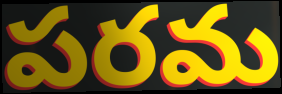
పరమ